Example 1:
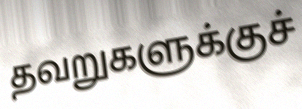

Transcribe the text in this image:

தவறுகளுக்குச்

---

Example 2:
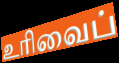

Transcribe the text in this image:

உரிவைப்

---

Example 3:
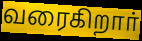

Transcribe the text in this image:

வரைகிறார்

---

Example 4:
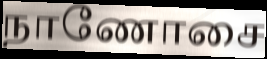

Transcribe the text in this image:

நாணோசை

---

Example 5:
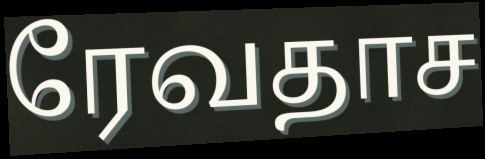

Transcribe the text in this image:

ரேவதாச